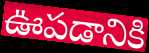
ఊపడానికి